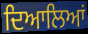
ਦਿਆਲਿਆਂ